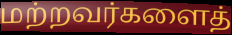
மற்றவர்களைத்